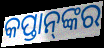
କପ୍ତାନ୍‌ଙ୍କର